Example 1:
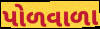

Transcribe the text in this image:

પોળવાળા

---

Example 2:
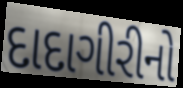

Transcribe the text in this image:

દાદાગીરીનો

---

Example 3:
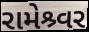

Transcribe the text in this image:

રામેશ્ર્વર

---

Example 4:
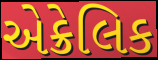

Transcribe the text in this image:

એક્રેલિક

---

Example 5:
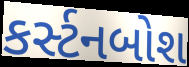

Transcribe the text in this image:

કર્સ્ટનબોશ